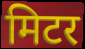
मिटर